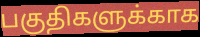
பகுதிகளுக்காக